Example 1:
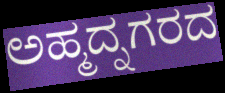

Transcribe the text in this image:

ಅಹ್ಮದ್ನಗರದ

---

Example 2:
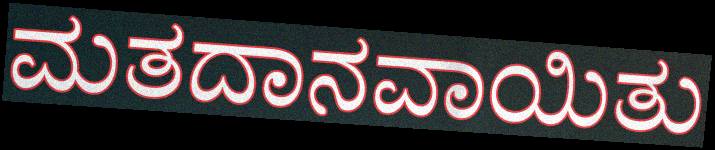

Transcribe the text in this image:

ಮತದಾನವಾಯಿತು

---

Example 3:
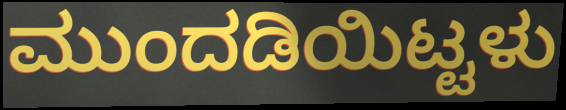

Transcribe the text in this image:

ಮುಂದಡಿಯಿಟ್ಟಳು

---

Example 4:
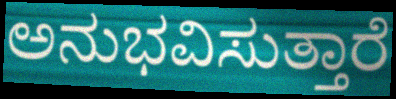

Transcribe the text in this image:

ಅನುಭವಿಸುತ್ತಾರೆ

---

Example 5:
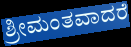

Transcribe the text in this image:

ಶ್ರೀಮಂತವಾದರೆ